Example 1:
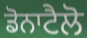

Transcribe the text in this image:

ਡੋਨਾਟੈਲੋ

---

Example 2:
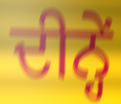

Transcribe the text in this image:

ਦੀਨ੍ਹੇਂ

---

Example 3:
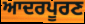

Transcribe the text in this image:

ਆਦਰਪੂਰਣ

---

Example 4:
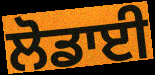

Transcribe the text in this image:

ਲੋਡਾਈ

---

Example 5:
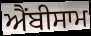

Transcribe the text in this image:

ਐਂਬੀਸਾਮ